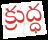
క్రుద్ధ